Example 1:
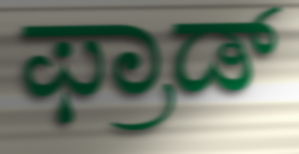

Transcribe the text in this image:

ಫ್ರಾಡ್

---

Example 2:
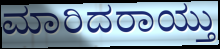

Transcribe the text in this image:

ಮಾರಿದರಾಯ್ತು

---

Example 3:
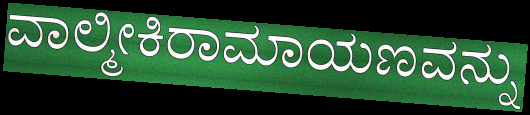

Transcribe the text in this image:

ವಾಲ್ಮೀಕಿರಾಮಾಯಣವನ್ನು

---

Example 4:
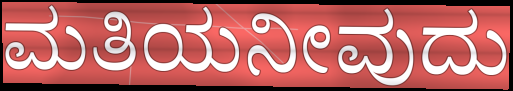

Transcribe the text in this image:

ಮತಿಯನೀವುದು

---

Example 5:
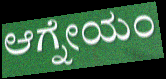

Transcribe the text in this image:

ಆಗ್ನೇಯಂ